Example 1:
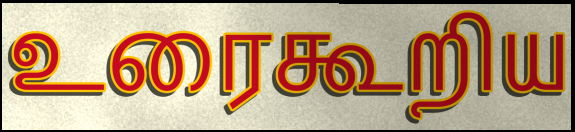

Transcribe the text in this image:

உரைகூறிய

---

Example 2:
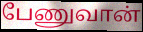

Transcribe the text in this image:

பேணுவான்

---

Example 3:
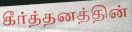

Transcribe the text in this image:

கீர்த்தனத்தின்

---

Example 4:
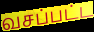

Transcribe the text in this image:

வசப்பட்ட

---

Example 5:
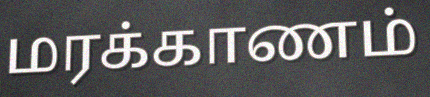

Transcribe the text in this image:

மரக்காணம்